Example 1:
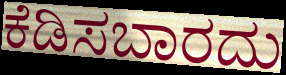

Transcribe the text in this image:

ಕೆಡಿಸಬಾರದು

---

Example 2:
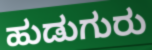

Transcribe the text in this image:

ಹುಡುಗುರು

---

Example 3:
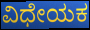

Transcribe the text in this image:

ವಿಧೇಯಕ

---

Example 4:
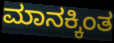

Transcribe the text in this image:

ಮಾನಕ್ಕಿಂತ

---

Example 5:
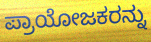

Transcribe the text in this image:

ಪ್ರಾಯೋಜಕರನ್ನು